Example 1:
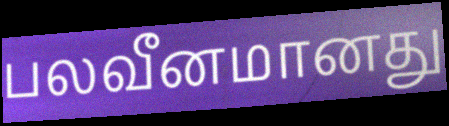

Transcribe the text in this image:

பலவீனமானது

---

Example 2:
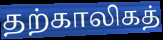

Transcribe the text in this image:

தற்காலிகத்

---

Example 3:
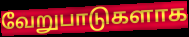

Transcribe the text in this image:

வேறுபாடுகளாக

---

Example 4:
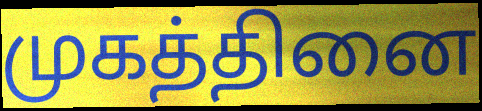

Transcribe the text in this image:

முகத்தினை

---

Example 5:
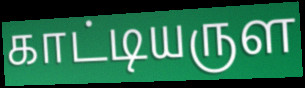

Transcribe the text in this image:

காட்டியருள